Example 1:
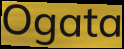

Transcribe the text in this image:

Ogata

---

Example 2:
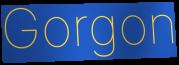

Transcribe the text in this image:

Gorgon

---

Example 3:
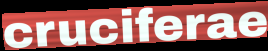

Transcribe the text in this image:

cruciferae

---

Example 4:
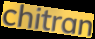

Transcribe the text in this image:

chitran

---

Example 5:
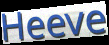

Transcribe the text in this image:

Heeve